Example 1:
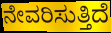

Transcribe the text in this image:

ನೇವರಿಸುತ್ತಿದೆ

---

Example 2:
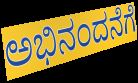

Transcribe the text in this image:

ಅಭಿನಂದನೆಗೆ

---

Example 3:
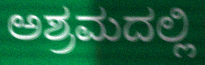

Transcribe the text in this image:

ಅಶ್ರಮದಲ್ಲಿ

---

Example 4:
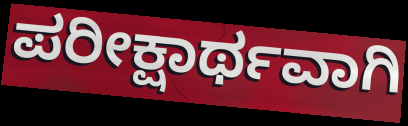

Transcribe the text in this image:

ಪರೀಕ್ಷಾರ್ಥವಾಗಿ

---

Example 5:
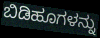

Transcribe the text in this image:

ಬಿಡಿಹೂಗಳನ್ನು